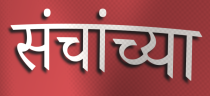
संचांच्या